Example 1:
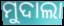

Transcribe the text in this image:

ମୁଦାଲା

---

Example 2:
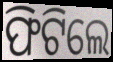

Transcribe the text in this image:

ଫିଟିଲେ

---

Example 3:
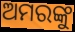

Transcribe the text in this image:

ଅମରଙ୍କୁ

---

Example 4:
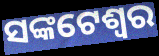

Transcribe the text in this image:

ସଙ୍କଟେଶ୍ୱର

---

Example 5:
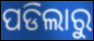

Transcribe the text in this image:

ପଡିଲାରୁ